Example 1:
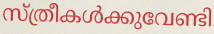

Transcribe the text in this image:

സ്ത്രീകൾക്കുവേണ്ടി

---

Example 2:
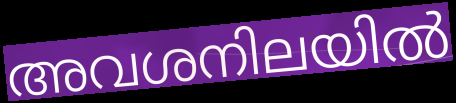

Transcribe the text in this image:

അവശനിലയിൽ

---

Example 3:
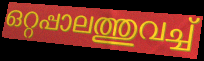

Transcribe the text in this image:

ഒറ്റപ്പാലത്തുവച്ച്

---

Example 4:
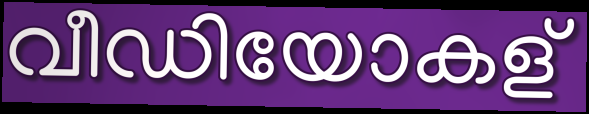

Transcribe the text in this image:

വീഡിയോകള്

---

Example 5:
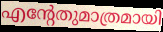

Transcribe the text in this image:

എന്റേതുമാത്രമായി